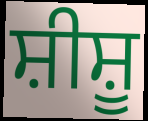
ਸ਼ੀਸ਼ੂ